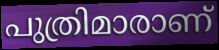
പുത്രിമാരാണ്